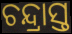
ଚନ୍ଦ୍ରାସ୍ତ